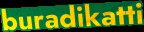
buradikatti